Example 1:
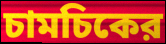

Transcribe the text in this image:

চামচিকের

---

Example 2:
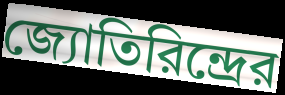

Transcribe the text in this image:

জ্যোতিরিন্দ্রের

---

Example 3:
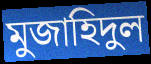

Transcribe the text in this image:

মুজাহিদুল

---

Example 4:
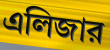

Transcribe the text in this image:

এলিজার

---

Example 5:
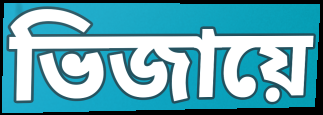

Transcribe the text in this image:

ভিজায়ে